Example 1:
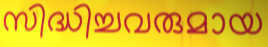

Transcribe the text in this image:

സിദ്ധിച്ചവരുമായ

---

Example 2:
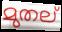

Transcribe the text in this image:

മുതല്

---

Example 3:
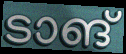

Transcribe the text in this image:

ടാങ്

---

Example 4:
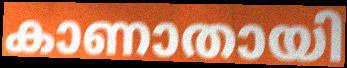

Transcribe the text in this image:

കാണാതായി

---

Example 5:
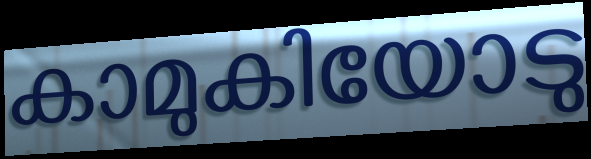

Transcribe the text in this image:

കാമുകിയോടു